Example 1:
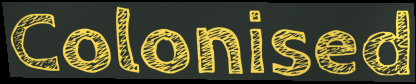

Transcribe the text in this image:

Colonised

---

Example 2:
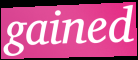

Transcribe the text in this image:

gained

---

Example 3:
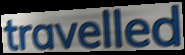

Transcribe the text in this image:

travelled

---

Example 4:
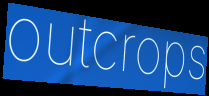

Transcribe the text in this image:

outcrops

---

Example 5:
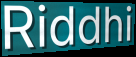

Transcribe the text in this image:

Riddhi